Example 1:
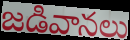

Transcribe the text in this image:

జడివానలు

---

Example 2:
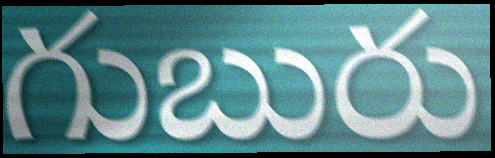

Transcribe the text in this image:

గుబురు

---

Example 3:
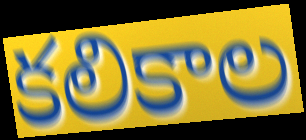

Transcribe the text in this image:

కలికాల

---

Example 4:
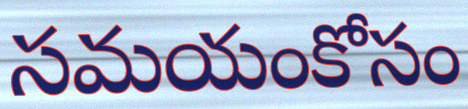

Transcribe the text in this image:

సమయంకోసం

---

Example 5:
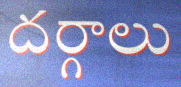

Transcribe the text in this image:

దర్గాలు